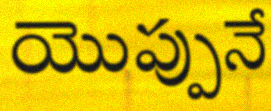
యొప్పునే